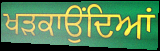
ਖੜਕਾਉਂਦਿਆਂ